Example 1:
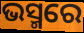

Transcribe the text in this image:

ଭସ୍ମରେ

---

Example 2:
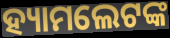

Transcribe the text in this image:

ହ୍ୟାମଲେଟଙ୍କ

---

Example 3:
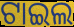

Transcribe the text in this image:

ଟାଇଲ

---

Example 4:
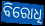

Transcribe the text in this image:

ବିରୋଧି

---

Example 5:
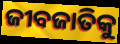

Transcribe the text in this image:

ଜୀବଜାତିକୁ